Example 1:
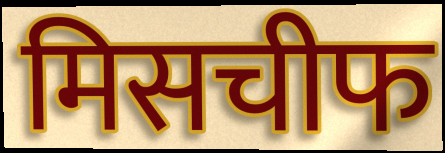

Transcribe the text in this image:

मिसचीफ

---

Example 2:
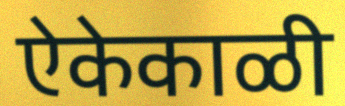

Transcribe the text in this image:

ऐकेकाळी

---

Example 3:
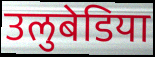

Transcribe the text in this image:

उलुबेडिया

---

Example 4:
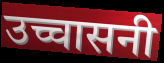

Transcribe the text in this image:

उच्चासनी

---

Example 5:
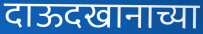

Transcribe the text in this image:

दाऊदखानाच्या